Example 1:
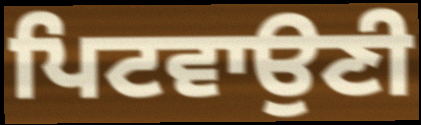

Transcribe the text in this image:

ਪਿਟਵਾਉਣੀ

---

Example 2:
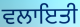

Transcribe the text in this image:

ਵਲਾਇਤੀ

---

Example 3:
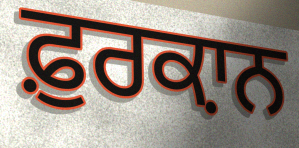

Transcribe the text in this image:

ਫ਼ੁਰਕ਼ਾਨ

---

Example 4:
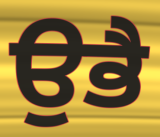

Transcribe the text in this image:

ਉਭੈ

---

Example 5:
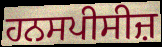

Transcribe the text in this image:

ਹਨਸਪੀਸੀਜ਼